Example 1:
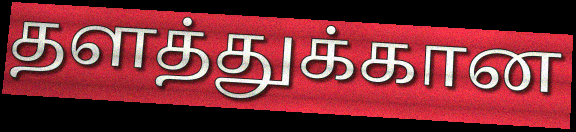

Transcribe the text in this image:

தளத்துக்கான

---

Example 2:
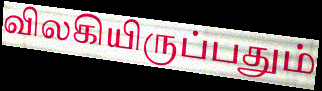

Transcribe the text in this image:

விலகியிருப்பதும்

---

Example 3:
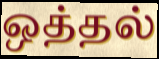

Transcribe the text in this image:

ஒத்தல்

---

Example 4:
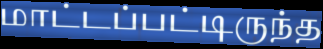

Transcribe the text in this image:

மாட்டப்பட்டிருந்த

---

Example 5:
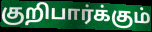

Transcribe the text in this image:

குறிபார்க்கும்